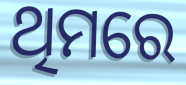
ଥିମରେ